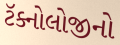
ટૅક્નોલોજીનો